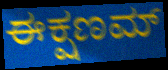
ಈಕ್ಷಣಮ್